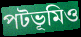
পটভূমিও